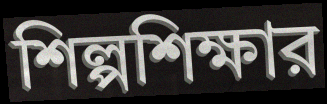
শিল্পশিক্ষার